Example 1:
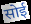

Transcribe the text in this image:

सोई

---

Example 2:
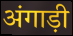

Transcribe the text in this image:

अंगाड़ी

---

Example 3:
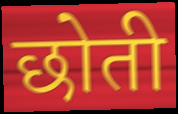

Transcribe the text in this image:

छोती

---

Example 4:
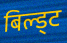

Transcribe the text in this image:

बिल्ड्ट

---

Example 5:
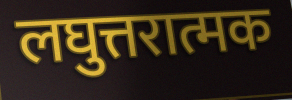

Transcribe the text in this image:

लघुत्तरात्मक